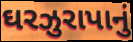
ઘરઝુરાપાનું